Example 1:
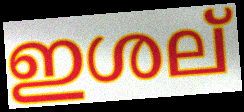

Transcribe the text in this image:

ഇശല്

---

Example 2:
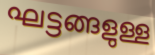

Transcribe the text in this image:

ഘട്ടങ്ങളുള്ള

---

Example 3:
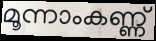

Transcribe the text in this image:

മൂന്നാംകണ്ണ്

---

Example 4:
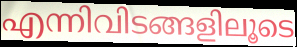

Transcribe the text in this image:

എന്നിവിടങ്ങളിലൂടെ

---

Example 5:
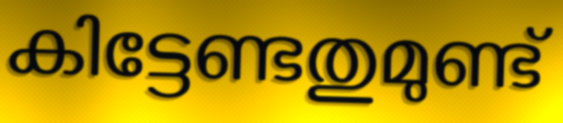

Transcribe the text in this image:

കിട്ടേണ്ടതുമുണ്ട്